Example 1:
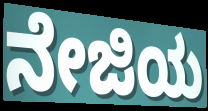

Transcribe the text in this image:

ನೇಜಿಯ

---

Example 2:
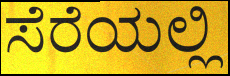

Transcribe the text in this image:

ಸೆರೆಯಲ್ಲಿ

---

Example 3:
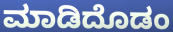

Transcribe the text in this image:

ಮಾಡಿದೊಡಂ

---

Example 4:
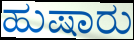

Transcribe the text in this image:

ಹುಷಾರು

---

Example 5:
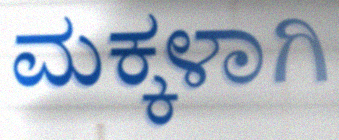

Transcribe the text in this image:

ಮಕ್ಕಳಾಗಿ